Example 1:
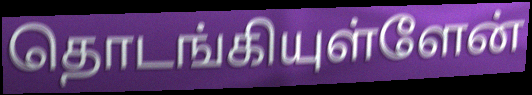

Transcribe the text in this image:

தொடங்கியுள்ளேன்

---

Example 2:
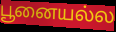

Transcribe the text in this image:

பூனையல்ல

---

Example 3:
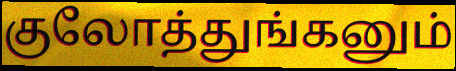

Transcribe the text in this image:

குலோத்துங்கனும்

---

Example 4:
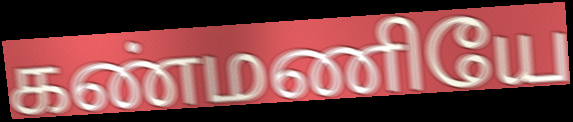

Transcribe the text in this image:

கண்மணியே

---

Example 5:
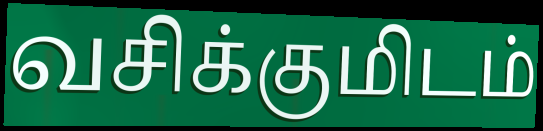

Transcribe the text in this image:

வசிக்குமிடம்